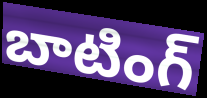
బాటింగ్